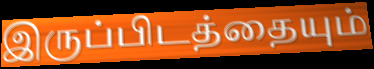
இருப்பிடத்தையும்